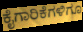
ಕೈಗಾರಿಕೆಗಳಿಗೂ